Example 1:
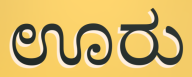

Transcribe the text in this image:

ಊರು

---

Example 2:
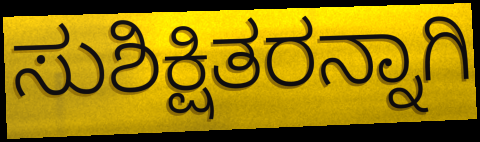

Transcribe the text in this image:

ಸುಶಿಕ್ಷಿತರನ್ನಾಗಿ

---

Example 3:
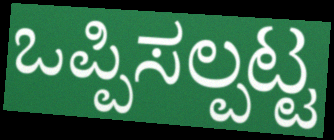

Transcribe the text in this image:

ಒಪ್ಪಿಸಲ್ಪಟ್ಟ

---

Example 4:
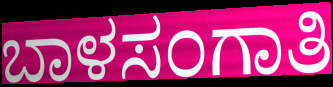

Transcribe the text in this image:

ಬಾಳಸಂಗಾತಿ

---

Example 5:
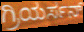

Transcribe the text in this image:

ಗ್ರಿಯರ್ಸನ್